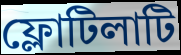
ফ্লোটিলাটি